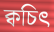
ক্বচিৎ